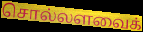
சொல்லளவைக்